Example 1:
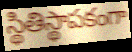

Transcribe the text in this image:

స్థితిస్థాపకంగా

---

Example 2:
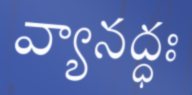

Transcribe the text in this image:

వ్యానద్ధః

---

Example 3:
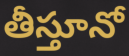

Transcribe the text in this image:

తీస్తూనో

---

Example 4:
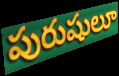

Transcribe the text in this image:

పురుషులూ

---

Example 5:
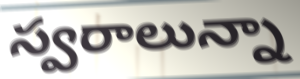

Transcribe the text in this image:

స్వరాలున్నా